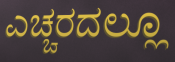
ಎಚ್ಚರದಲ್ಲೂ